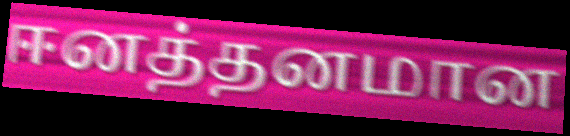
ஈனத்தனமான